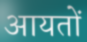
आयतों